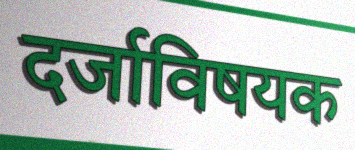
दर्जाविषयक